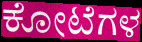
ಕೋಟೆಗಳ